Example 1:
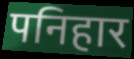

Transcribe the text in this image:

पनिहार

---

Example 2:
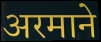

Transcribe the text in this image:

अरमाने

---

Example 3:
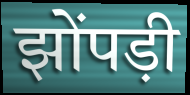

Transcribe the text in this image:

झोंपड़ी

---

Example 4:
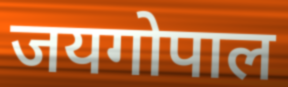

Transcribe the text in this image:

जयगोपाल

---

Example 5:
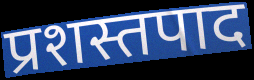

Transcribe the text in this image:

प्रशस्तपाद